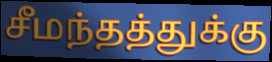
சீமந்தத்துக்கு